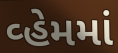
વ્હેમમાં